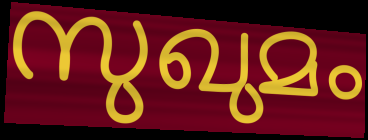
സുഖുമം